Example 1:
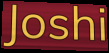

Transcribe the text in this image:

Joshi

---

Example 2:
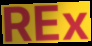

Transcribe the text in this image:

REx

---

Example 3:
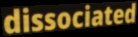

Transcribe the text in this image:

dissociated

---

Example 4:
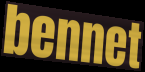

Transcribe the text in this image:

bennet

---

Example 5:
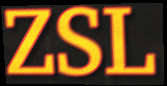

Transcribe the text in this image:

ZSL